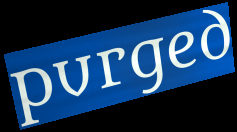
purged